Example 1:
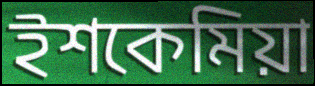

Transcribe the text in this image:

ইশকেমিয়া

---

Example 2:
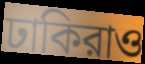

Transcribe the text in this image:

ঢাকিরাও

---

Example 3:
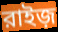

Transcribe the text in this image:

রাইজ়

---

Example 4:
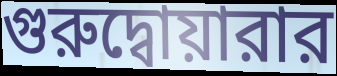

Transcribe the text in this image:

গুরুদ্বোয়ারার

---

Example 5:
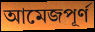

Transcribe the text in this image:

আমেজপূর্ণ